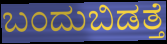
ಬಂದುಬಿಡತ್ತೆ